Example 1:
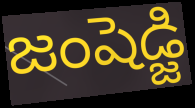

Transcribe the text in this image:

జంషెడ్జి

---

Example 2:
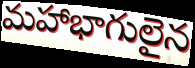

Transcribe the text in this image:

మహాభాగులైన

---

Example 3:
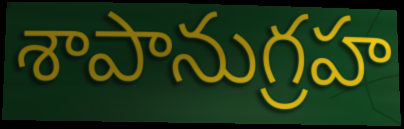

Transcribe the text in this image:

శాపానుగ్రహ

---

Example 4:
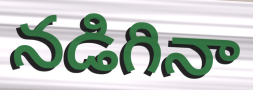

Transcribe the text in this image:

నడిగినా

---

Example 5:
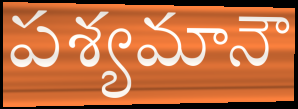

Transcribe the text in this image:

పశ్యమానౌ